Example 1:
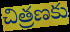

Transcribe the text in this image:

చిత్రణకు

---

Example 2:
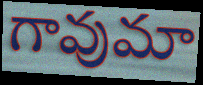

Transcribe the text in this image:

గావుమా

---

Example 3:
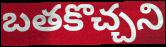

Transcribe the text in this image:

బతకొచ్చని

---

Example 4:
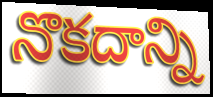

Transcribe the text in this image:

నొకదాన్ని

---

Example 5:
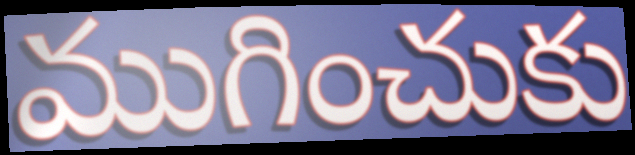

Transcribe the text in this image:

ముగించుకు